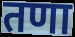
तणा